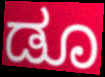
ಡೂ